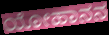
ಯೋಹಾನನ